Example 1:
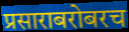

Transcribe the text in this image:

प्रसाराबरोबरच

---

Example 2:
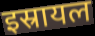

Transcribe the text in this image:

इस्रायल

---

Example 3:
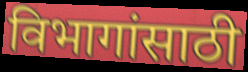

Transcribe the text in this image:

विभागांसाठी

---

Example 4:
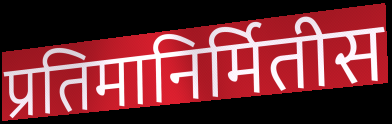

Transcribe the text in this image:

प्रतिमानिर्मितीस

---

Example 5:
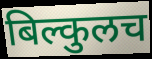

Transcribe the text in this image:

बिल्कुलच